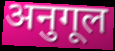
अनुगूल